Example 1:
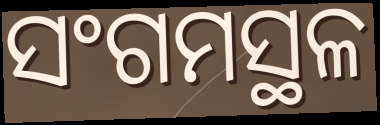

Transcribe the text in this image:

ସଂଗମସ୍ଥଳ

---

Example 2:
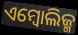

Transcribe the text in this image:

ଏମ୍ବୋଲିଜ୍ମ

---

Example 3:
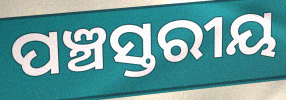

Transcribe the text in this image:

ପଞ୍ଚସ୍ତରୀୟ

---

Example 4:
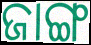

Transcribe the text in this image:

ଜାଙ୍ଗ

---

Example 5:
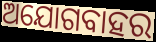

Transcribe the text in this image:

ଅଯୋଗବାହର